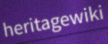
heritagewiki